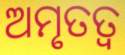
ଅମୃତତ୍ବ